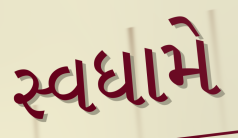
સ્વધામે